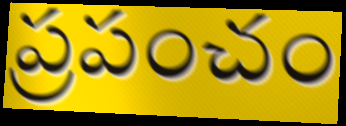
ప్రపంచం